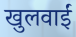
खुलवाईं